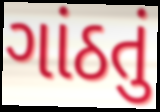
ગાંઠતું